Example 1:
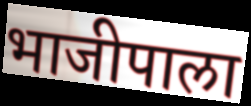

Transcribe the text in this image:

भाजीपाला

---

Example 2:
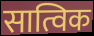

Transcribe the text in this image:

सात्विक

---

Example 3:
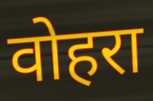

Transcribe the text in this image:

वोहरा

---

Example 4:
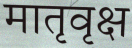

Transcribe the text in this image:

मातृवृक्ष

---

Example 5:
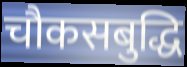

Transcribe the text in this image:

चौकसबुद्धि